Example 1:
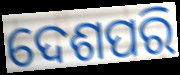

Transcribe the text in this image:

ଦେଶପରି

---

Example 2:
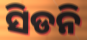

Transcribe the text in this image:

ସିଡନି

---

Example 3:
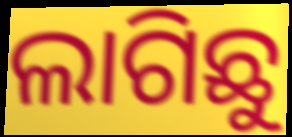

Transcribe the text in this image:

ଲାଗିଛୁ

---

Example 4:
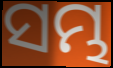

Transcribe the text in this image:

ସମ୍ଭ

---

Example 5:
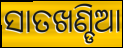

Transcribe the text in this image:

ସାତଖଣ୍ଡିଆ